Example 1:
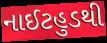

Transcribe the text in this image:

નાઈટહુડથી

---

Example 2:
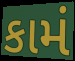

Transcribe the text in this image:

કામં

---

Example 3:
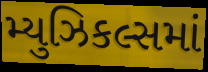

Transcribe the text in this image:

મ્યુઝિકલ્સમાં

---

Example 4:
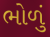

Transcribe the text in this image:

ભોળું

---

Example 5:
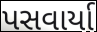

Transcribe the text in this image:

પસવાર્યા